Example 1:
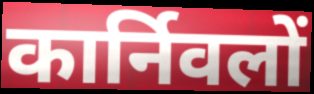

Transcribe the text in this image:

कार्निवलों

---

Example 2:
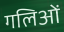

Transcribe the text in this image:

गलिओं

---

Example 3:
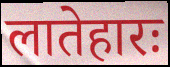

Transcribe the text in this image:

लातेहारः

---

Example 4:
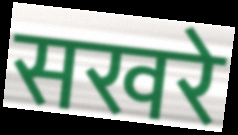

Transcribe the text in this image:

सखरे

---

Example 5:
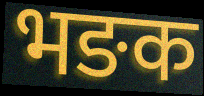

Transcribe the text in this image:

भङक